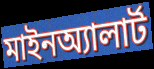
মাইনঅ্যালার্ট